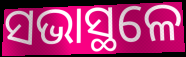
ସଭାସ୍ଥଳେ